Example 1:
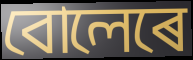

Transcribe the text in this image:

বোলেৰে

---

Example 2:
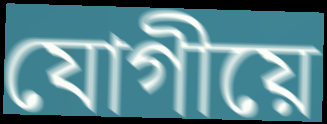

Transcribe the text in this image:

যোগীয়ে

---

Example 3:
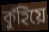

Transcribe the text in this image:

কুঁহিয়ে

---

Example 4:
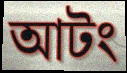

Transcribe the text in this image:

আটং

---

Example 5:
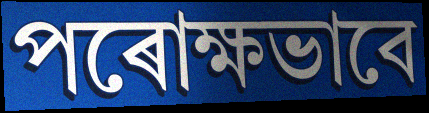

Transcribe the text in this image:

পৰোক্ষভাবে